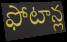
ఫోటాన్ల